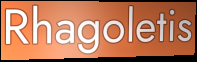
Rhagoletis